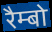
रैम्बो